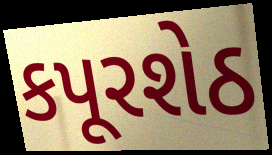
કપૂરશેઠ